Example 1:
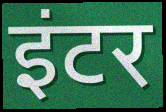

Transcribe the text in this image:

इंटर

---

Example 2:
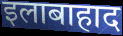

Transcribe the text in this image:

इलाबाहाद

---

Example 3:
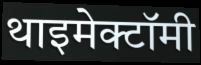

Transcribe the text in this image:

थाइमेक्टॉमी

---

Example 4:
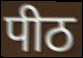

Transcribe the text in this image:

पीठ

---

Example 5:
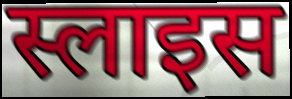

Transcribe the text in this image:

स्लाइस